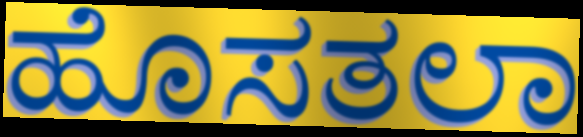
ಹೊಸತಲಾ